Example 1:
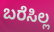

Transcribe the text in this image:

ಬರೆಸಿಲ್ಲ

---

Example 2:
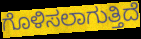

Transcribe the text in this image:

ಗೊಳಿಸಲಾಗುತ್ತಿದೆ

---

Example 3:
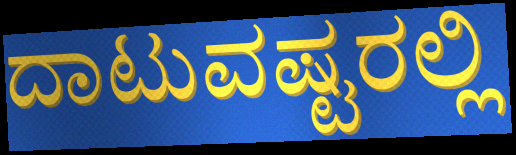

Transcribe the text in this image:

ದಾಟುವಷ್ಟರಲ್ಲಿ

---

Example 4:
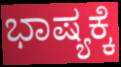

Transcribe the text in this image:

ಭಾಷ್ಯಕ್ಕೆ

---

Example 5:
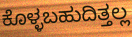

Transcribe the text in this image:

ಕೊಳ್ಳಬಹುದಿತ್ತಲ್ಲ